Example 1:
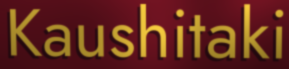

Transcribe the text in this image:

Kaushitaki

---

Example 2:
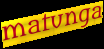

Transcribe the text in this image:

matunga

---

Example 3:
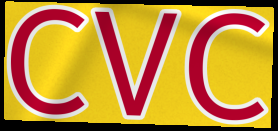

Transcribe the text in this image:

CVC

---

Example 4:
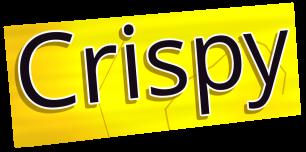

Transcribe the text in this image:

Crispy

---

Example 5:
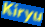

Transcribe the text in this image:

Kiryu